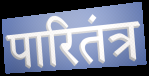
पारितंत्र